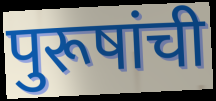
पुरूषांची